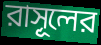
রাসূলের